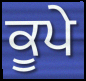
ਕੂਪੇ